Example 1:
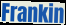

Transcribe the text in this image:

Frankin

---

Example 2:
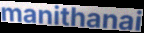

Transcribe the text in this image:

manithanai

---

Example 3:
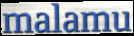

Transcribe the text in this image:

malamu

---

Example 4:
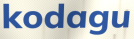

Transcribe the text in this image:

kodagu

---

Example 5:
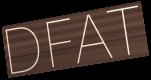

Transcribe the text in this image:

DFAT